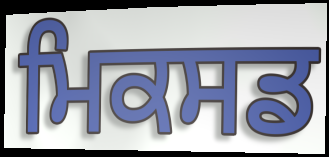
ਮਿਕਸਡ